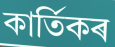
কাৰ্তিকৰ